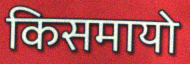
किसमायो